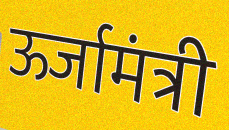
ऊर्जामंत्री